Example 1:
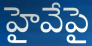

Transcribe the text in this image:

హైవేపై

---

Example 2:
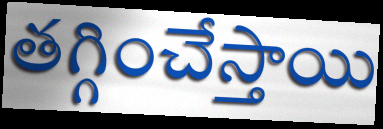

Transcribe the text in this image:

తగ్గించేస్తాయి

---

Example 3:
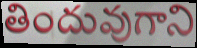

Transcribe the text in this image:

తిందువుగాని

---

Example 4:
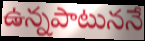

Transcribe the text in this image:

ఉన్నపాటుననే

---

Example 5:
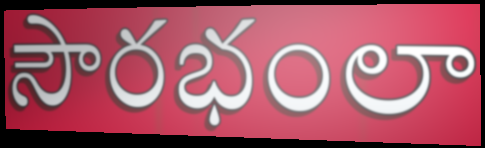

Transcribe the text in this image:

సౌరభంలా